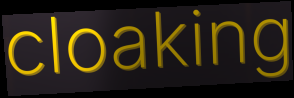
cloaking